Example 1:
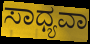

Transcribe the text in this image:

ಸಾಧ್ಯವಾ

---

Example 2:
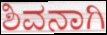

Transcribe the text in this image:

ಶಿವನಾಗಿ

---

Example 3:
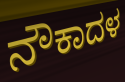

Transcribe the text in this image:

ನೌಕಾದಳ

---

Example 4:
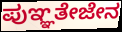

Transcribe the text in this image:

ಪುಞ್ಞತೇಜೇನ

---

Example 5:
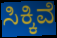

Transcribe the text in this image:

ಸಿಕ್ಕಿವೆ